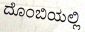
ದೊಂಬಿಯಲ್ಲಿ